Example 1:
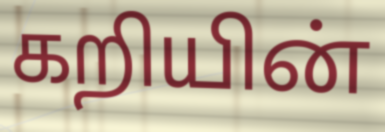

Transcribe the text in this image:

கறியின்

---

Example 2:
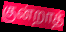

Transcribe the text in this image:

குன்றாத்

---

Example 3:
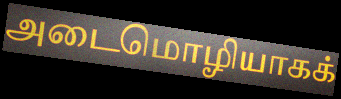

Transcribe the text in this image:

அடைமொழியாகக்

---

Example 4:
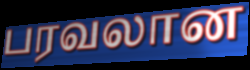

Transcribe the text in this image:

பரவலான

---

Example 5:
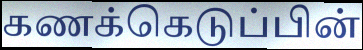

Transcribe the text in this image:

கணக்கெடுப்பின்